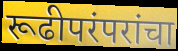
रूढीपरंपरांचा